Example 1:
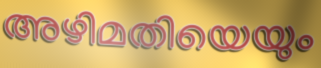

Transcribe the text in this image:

അഴിമതിയെയും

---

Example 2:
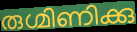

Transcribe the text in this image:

രുഗ്മിണിക്കു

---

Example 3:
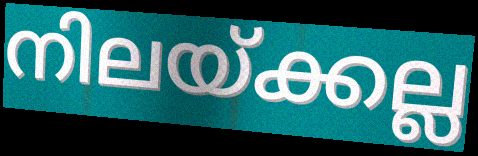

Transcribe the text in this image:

നിലയ്ക്കല്ല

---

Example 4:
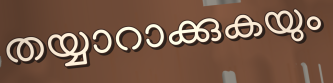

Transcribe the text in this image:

തയ്യാറാക്കുകയും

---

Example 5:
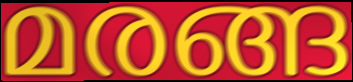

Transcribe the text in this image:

മരങ്ങ